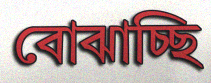
বোঝাচ্ছি